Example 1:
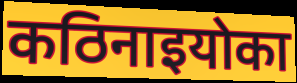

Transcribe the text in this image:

कठिनाइयोका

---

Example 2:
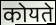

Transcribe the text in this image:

कोयते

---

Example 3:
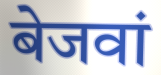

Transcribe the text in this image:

बेजवां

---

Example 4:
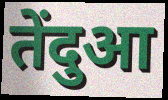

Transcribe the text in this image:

तेंदुआ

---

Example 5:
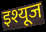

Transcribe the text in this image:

इश्यूज